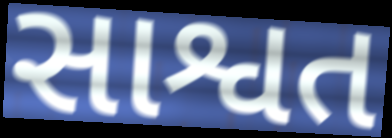
સાશ્વત